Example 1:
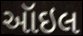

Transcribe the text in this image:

ઑઇલ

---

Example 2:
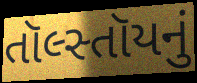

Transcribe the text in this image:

તૉલ્સ્તૉયનું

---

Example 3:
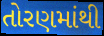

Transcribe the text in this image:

તોરણમાંથી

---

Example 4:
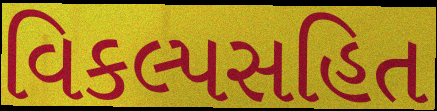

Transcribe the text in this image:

વિકલ્પસહિત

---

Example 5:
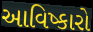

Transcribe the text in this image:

આવિષ્કારો